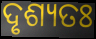
ଦୃଶ୍ୟତଃ